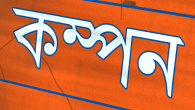
কম্পন